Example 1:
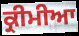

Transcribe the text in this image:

ਕ੍ਰੀਮੀਆ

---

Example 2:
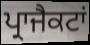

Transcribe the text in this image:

ਪ੍ਰਾਜੈਕਟਾਂ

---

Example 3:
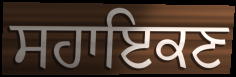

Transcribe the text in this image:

ਸਹਾਇਕਣ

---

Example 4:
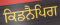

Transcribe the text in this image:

ਕਿਡਨੈਪਿਗ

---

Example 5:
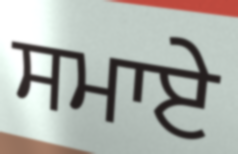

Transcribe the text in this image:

ਸਮਾਏ